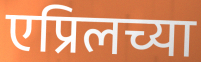
एप्रिलच्या